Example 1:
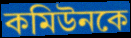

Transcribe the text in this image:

কমিউনকে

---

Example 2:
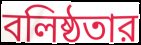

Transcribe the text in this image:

বলিষ্ঠতার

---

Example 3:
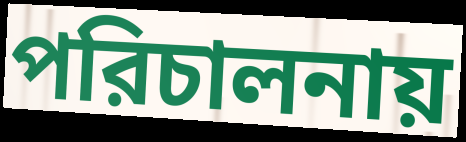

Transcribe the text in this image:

পরিচালনায়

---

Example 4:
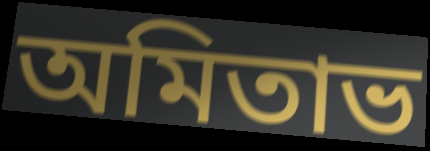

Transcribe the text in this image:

অমিতাভ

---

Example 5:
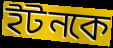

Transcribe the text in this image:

ইটনকে